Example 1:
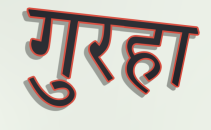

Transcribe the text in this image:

गुरहा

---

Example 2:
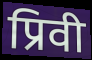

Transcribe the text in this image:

प्रिवी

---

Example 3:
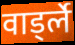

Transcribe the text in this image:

वार्ड्ले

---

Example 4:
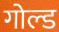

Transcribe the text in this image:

गोल्‍ड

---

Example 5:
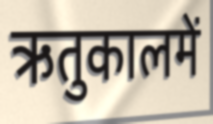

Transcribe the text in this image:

ऋतुकालमें